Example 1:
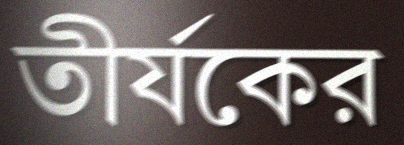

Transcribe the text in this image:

তীর্যকের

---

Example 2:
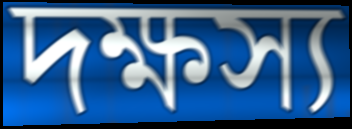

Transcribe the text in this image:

দক্ষস্য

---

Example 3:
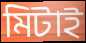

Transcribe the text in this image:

মিটাই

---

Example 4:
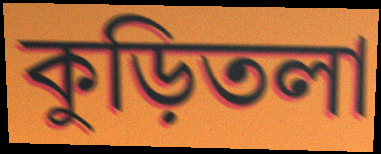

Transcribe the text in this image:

কুড়িতলা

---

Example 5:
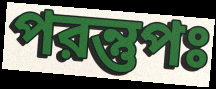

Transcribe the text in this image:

পরন্তুপঃ